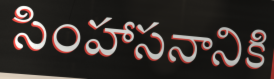
సింహాసనానికి